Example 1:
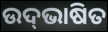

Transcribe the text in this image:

ଉଦ୍‍ଭାଷିତ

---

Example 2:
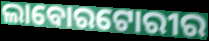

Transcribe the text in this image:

ଲାବୋରଟୋରୀର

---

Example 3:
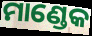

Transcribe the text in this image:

ମାଣ୍ଡେକ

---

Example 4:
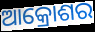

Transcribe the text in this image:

ଆକ୍ରୋଶର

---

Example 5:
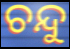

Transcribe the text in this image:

ଚନ୍ଦୁ